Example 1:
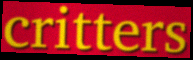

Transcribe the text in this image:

critters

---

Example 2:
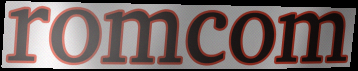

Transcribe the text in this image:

romcom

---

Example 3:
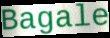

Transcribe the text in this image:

Bagale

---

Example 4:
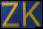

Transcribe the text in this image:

ZK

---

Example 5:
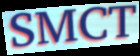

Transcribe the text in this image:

SMCT